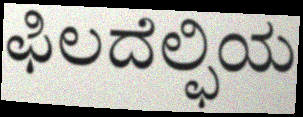
ಫಿಲದೆಲ್ಫಿಯ